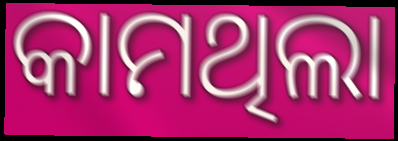
କାମଥିଲା